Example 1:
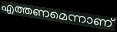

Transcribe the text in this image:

എത്തണമെന്നാണ്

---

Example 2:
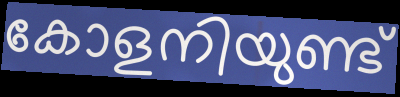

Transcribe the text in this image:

കോളനിയുണ്ട്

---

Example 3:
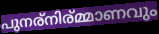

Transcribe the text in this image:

പുനര്നിര്മ്മാണവും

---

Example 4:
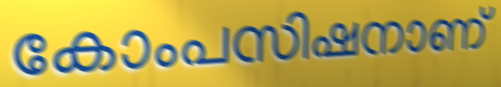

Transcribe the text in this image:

കോംപസിഷനാണ്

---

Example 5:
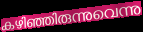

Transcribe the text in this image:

കഴിഞ്ഞിരുന്നുവെന്നു